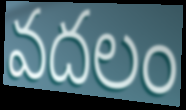
వదలం